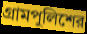
গ্রামপুলিশের